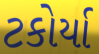
ટકોર્યા